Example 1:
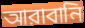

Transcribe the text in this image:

আরাবানি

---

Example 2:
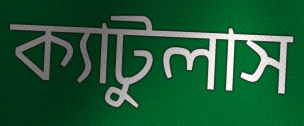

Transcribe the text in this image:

ক্যাটুলাস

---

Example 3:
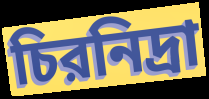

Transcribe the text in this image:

চিরনিদ্রা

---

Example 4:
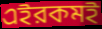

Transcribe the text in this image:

এইরকমই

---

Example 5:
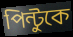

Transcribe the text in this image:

পিন্টুকে